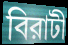
বিরাটী